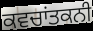
ਕਵਚਾਂਤਕਨੀ